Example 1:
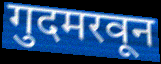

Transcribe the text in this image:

गुदमरवून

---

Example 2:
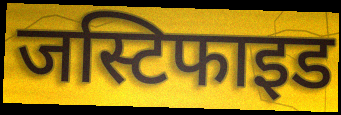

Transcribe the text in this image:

जस्टिफाइड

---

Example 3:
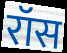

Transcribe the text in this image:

रॉस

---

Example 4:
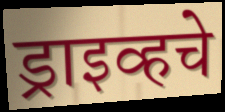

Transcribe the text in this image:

ड्राइव्हचे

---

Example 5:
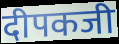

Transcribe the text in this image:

दीपकजी